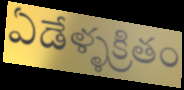
ఏడేళ్ళక్రితం